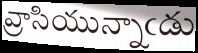
వ్రాసియున్నాఁడు